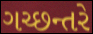
ગચ્છન્તરે